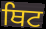
ਥਿਟ